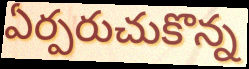
ఏర్పరుచుకొన్న